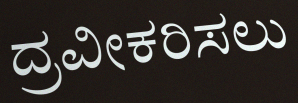
ದ್ರವೀಕರಿಸಲು